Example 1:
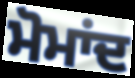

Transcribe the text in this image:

ਮੋਮਾਂਦ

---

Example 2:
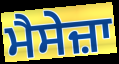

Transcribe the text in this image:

ਮੈਸੇਜ਼ਾ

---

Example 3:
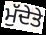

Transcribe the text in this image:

ਮੁੱਦੇਤੇ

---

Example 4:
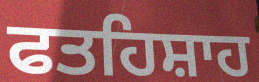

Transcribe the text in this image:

ਫਤਹਿਸ਼ਾਹ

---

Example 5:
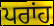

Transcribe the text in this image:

ਪਰਾਂਹ